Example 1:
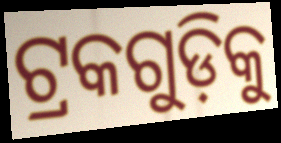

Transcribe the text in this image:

ଟ୍ରକଗୁଡ଼ିକୁ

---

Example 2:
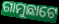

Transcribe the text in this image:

ଗାମୁଛାଟେ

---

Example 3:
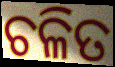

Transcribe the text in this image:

ଚଳିତ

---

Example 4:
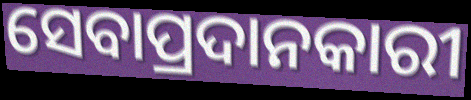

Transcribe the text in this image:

ସେବାପ୍ରଦାନକାରୀ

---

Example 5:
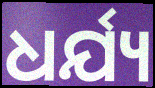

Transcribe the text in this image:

ଧର୍ଯ୍ୟ